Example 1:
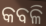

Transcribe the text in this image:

କବଳି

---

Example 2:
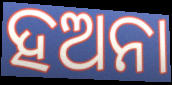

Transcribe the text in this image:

ହଅନା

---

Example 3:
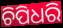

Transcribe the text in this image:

ଚିପିଧରି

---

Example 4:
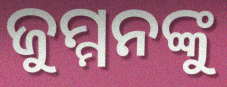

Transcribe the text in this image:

ଜୁମ୍ମନଙ୍କୁ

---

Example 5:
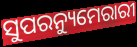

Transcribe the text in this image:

ସୁପରନ୍ୟୁମେରାରୀ